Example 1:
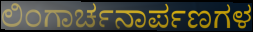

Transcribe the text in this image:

ಲಿಂಗಾರ್ಚನಾರ್ಪಣಗಳ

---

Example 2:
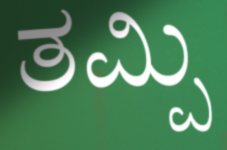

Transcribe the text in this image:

ತಮ್ಪಿ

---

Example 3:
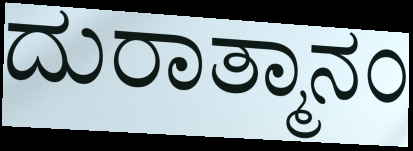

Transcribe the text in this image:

ದುರಾತ್ಮಾನಂ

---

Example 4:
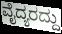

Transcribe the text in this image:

ವೈದ್ಯರದ್ದು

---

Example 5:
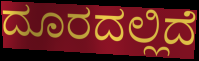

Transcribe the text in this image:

ದೂರದಲ್ಲಿದೆ